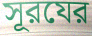
সূরযের